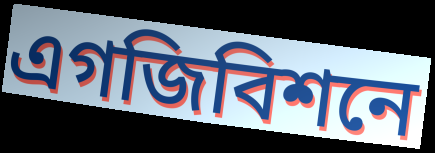
এগজিবিশনে